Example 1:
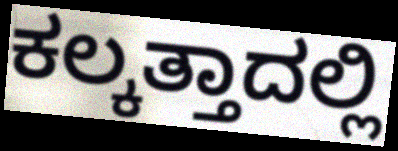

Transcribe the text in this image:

ಕಲ್ಕತ್ತಾದಲ್ಲಿ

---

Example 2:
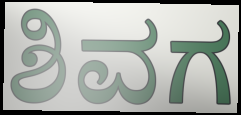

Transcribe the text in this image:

ಶಿವಗ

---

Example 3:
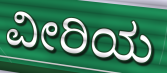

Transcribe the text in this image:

ವೀರಿಯ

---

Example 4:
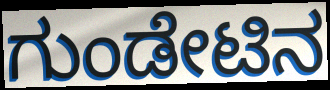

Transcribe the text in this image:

ಗುಂಡೇಟಿನ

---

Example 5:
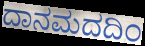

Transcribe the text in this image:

ದಾನಮದದಿಂ